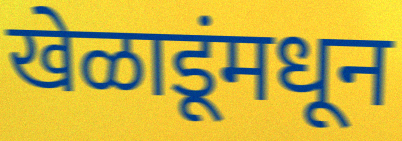
खेळाडूंमधून